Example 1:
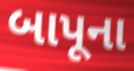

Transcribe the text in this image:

બાપૂના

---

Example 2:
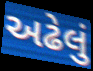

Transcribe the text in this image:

અઢેલું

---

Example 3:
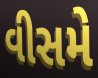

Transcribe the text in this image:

વીસમે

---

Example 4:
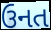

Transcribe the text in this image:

ઉનત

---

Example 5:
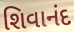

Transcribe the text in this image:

શિવાનંદ